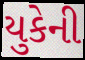
યુકેની